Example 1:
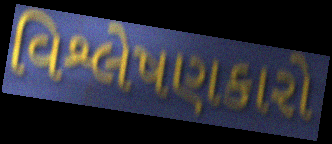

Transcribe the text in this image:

વિશ્લેષણકારો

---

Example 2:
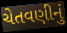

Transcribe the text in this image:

ચેતવણીનું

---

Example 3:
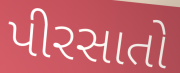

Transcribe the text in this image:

પીરસાતો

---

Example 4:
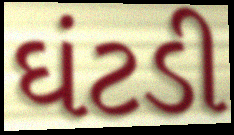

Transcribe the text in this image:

ઘંટડી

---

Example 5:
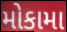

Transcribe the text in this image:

મોકામા